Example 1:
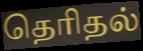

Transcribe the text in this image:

தெரிதல்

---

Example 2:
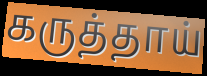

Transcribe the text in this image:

கருத்தாய்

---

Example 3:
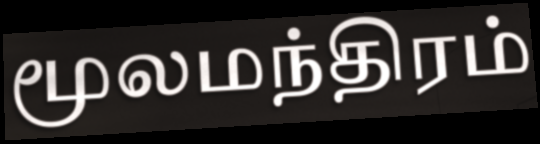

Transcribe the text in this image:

மூலமந்திரம்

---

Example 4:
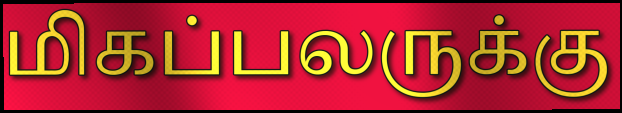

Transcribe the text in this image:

மிகப்பலருக்கு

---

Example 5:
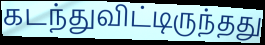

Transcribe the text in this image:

கடந்துவிட்டிருந்தது